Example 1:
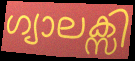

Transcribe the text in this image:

ഗ്യാലക്സി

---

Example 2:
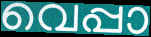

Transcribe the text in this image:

വെപ്പാ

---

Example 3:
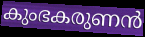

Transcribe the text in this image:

കുംഭകരുണൻ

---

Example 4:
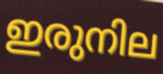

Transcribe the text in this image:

ഇരുനില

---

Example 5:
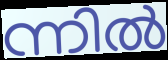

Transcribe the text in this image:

ന്നിൽ